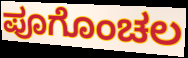
ಪೂಗೊಂಚಲ